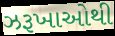
ઝરૂખાઓથી